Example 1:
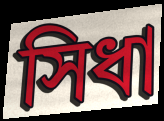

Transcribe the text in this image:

সিধা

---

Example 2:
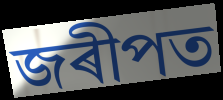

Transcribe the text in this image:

জৰীপত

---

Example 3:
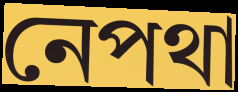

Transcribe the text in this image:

নেপথা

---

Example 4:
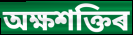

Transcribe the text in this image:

অক্ষশক্তিৰ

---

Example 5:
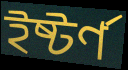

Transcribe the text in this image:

ইষ্টৰ্ণ